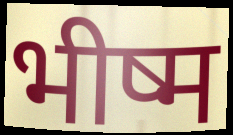
भीष्म